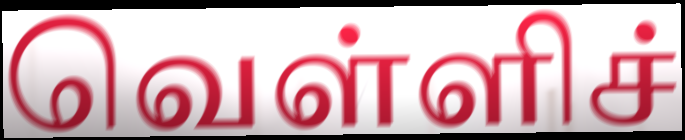
வெள்ளிச்